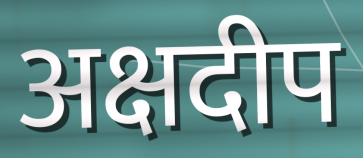
अक्षदीप